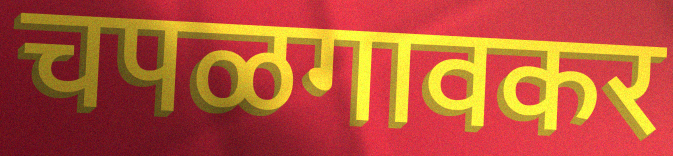
चपळगावकर